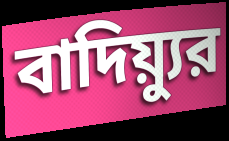
বাদিয়্যুর